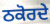
ਠਕੋਰਦੇ